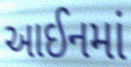
આઈનમાં